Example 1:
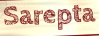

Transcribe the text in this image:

Sarepta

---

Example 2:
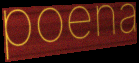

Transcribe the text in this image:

poena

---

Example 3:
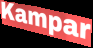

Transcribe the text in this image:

Kampar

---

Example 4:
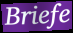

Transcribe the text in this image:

Briefe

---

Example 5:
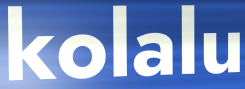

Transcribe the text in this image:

kolalu